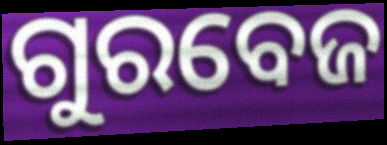
ଗୁରବେଜ